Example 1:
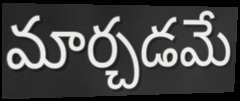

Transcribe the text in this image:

మార్చడమే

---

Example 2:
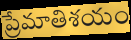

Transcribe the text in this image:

ప్రేమాతిశయం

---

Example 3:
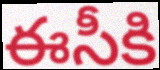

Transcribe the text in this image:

ఈసీకి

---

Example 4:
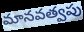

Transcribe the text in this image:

మానవత్వపు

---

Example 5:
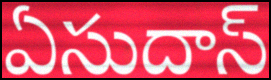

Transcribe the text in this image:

ఏసుదాస్